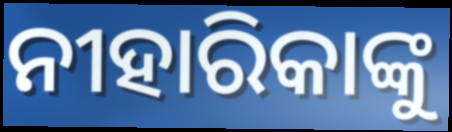
ନୀହାରିକାଙ୍କୁ